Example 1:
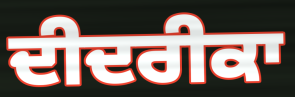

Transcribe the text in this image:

ਦੀਦਰੀਕਾ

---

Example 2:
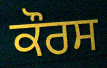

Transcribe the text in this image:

ਕੌਰਸ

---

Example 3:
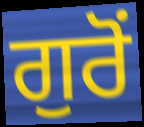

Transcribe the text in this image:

ਗੁਰੋਂ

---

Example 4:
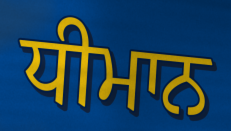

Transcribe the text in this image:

ਧੀਮਾਨ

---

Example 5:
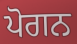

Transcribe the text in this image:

ਪੋਗਨ